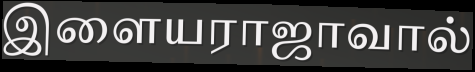
இளையராஜாவால்